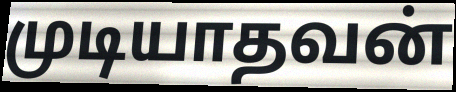
முடியாதவன்